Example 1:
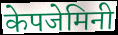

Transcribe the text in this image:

केपजेमिनी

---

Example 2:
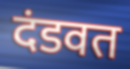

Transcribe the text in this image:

दंडवत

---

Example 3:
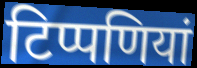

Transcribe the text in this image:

टिप्‍पणियां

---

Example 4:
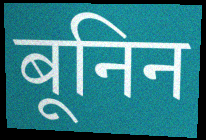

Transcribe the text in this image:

बूनिन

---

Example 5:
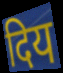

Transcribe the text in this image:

दिय